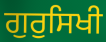
ਗੁਰੁਸਿਖੀ